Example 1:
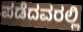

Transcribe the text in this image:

ಪಡೆದವರಲ್ಲಿ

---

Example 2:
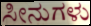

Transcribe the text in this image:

ಸೀನುಗಳು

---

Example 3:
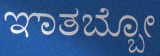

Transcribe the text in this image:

ಞಾತಬ್ಬೋ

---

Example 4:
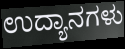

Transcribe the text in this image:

ಉದ್ಯಾನಗಳು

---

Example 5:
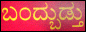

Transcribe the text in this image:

ಬಂದ್ಬುಡ್ತು